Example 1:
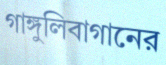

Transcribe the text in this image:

গাঙ্গুলিবাগানের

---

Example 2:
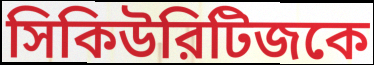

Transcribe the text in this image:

সিকিউরিটিজকে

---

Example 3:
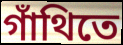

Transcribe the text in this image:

গাঁথিতে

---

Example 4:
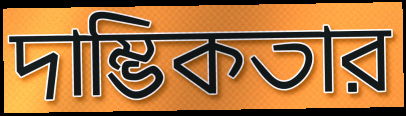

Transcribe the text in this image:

দাম্ভিকতার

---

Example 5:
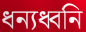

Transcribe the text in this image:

ধন্যধ্বনি